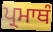
ਪ੍ਰਮਾਥੰ